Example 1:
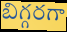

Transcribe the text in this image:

బిగ్గరగా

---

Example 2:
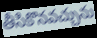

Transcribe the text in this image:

తీసికొనవచ్చును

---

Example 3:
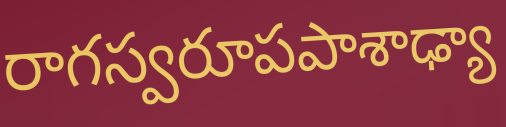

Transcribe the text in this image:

రాగస్వరూపపాశాఢ్యా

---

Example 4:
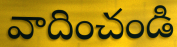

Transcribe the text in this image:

వాదించండి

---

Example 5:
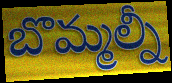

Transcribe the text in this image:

బొమ్మల్నీ